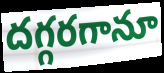
దగ్గరగానూ